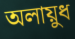
অলায়ুধ